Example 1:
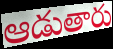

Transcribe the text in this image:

ఆడుతారు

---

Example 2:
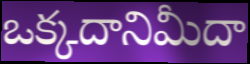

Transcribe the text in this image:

ఒక్కదానిమీదా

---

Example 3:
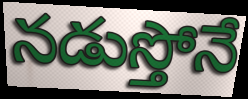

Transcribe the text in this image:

నడుస్తోనే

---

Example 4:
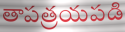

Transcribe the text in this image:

తాపత్రయపడి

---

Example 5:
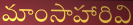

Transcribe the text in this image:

మాంసాహారివి